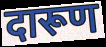
दारूण